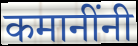
कमानींनी